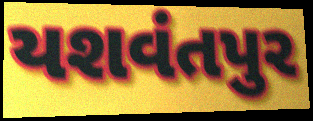
યશવંતપુર